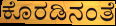
ಕೊರಡಿನಂತೆ